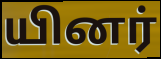
யினர்